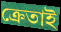
ক্ৰেতাই